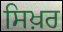
ਸਿਖ਼ਰ